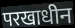
परखाधीन